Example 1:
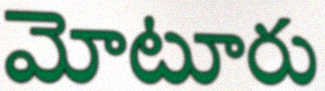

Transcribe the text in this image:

మోటూరు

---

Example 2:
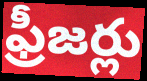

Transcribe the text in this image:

ఫ్రీజర్లు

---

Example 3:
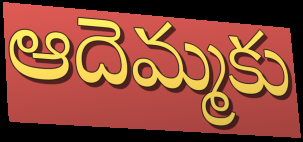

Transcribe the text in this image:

ఆదెమ్మకు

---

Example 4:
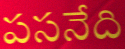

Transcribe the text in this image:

పసనేది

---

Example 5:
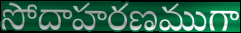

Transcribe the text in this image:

సోదాహరణముగా